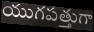
యుగపత్తుగా